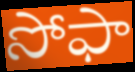
సోఫా